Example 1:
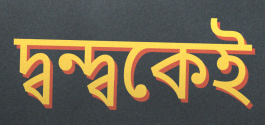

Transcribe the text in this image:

দ্বন্দ্বকেই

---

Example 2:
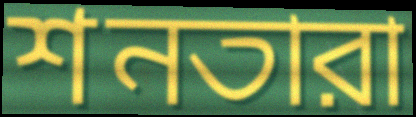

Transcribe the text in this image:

শনতারা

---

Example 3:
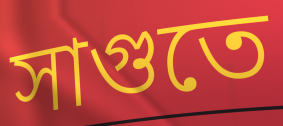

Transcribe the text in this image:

সাগুতে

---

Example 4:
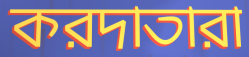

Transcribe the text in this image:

করদাতারা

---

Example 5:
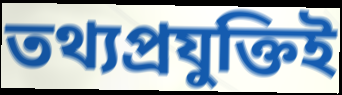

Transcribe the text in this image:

তথ্যপ্রযুক্তিই